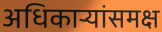
अधिकाऱ्यांसमक्ष